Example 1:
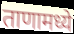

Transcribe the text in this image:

ताणामध्ये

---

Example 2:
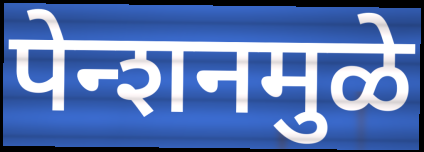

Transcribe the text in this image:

पेन्शनमुळे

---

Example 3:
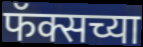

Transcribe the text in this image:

फॅक्सच्या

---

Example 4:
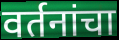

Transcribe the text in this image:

वर्तनांचा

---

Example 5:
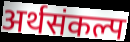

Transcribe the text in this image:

अर्थसंकल्प